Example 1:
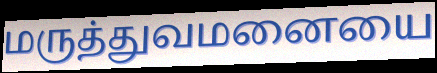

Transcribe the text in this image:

மருத்துவமனையை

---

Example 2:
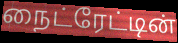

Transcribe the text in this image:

நைட்ரேட்டின்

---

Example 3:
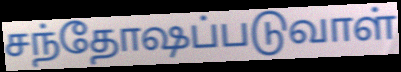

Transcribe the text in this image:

சந்தோஷப்படுவாள்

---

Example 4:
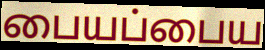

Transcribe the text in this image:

பையப்பைய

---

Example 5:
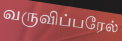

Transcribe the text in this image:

வருவிப்பரேல்